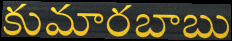
కుమారబాబు